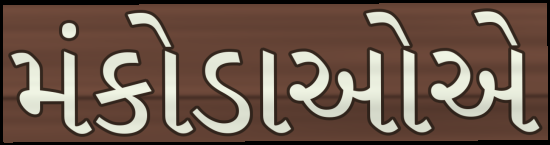
મંકોડાઓએ